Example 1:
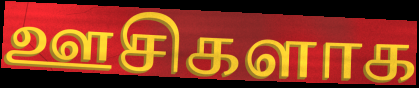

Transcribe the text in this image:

ஊசிகளாக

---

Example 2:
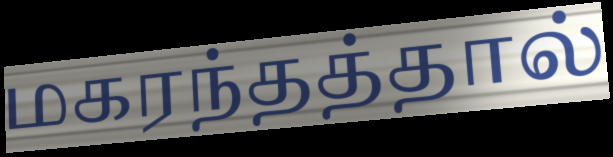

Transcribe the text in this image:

மகரந்தத்தால்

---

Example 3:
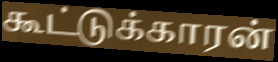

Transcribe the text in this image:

கூட்டுக்காரன்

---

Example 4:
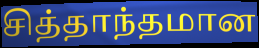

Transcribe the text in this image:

சித்தாந்தமான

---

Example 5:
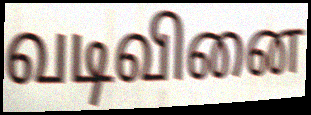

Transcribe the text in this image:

வடிவினை